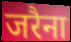
जरैना